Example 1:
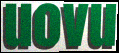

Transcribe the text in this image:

uovu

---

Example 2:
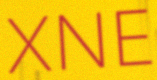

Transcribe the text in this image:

XNE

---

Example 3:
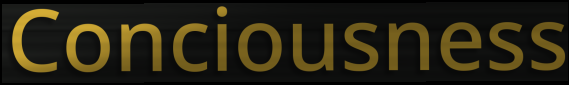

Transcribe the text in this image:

Conciousness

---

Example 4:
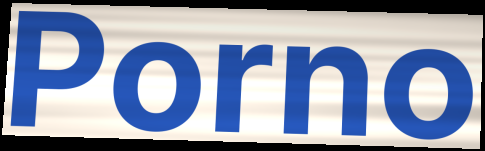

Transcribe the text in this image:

Porno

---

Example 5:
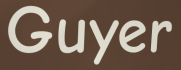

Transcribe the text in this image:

Guyer